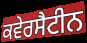
ਕਵੇਰਸੈਟੀਨ